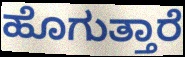
ಹೊಗುತ್ತಾರೆ